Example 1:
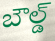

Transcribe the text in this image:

బౌల్డ్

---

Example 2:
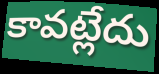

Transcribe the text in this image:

కావట్లేదు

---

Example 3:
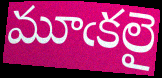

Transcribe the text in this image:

మూఁకలై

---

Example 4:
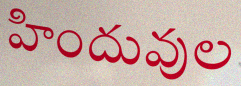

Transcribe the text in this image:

హిందువుల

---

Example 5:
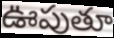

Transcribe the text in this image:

ఊపుతూ